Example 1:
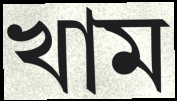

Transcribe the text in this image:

খাম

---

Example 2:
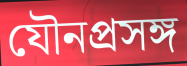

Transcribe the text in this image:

যৌনপ্রসঙ্গ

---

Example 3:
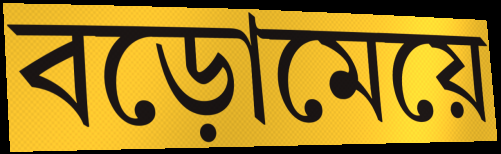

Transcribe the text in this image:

বড়োমেয়ে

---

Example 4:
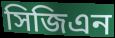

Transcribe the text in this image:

সিজিএন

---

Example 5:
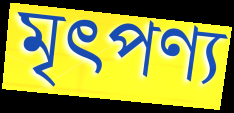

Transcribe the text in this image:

মৃৎপণ্য